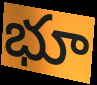
భూ